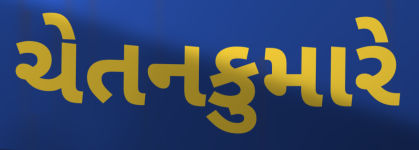
ચેતનકુમારે